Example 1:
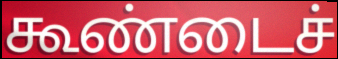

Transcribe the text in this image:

கூண்டைச்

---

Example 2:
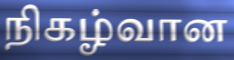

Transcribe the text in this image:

நிகழ்வான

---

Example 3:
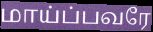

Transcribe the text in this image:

மாய்ப்பவரே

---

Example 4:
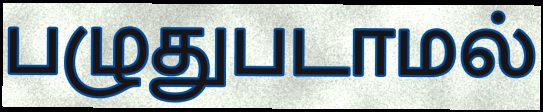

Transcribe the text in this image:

பழுதுபடாமல்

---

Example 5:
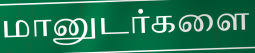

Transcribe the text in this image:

மானுடர்களை